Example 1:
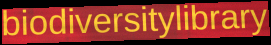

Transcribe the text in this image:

biodiversitylibrary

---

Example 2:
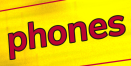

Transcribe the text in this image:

phones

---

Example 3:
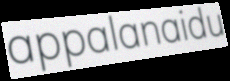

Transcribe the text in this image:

appalanaidu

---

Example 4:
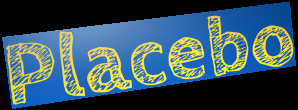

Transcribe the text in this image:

Placebo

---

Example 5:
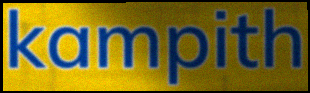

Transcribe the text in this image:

kampith